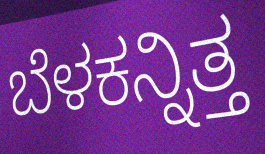
ಬೆಳಕನ್ನಿತ್ತ